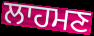
ਲਾਹਮਣ